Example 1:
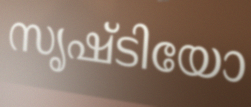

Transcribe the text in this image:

സൃഷ്ടിയോ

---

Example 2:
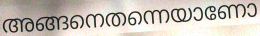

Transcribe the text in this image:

അങ്ങനെതന്നെയാണോ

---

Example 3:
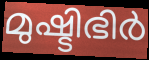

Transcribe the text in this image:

മുഷ്ടിഭിർ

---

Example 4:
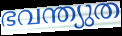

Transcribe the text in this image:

ഭവന്ത്യുത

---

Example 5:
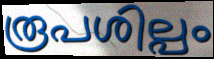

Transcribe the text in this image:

രൂപശില്പം